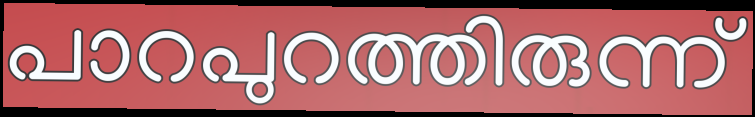
പാറപുറത്തിരുന്ന്